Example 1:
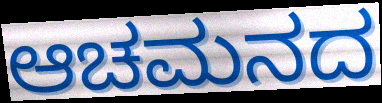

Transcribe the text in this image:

ಆಚಮನದ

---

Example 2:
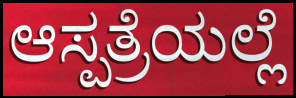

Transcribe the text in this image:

ಆಸ್ಪತ್ರೆಯಲ್ಲೆ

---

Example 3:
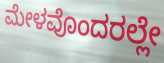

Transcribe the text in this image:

ಮೇಳವೊಂದರಲ್ಲೇ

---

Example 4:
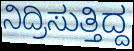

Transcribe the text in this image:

ನಿದ್ರಿಸುತ್ತಿದ್ದ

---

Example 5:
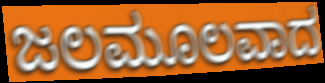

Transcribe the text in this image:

ಜಲಮೂಲವಾದ